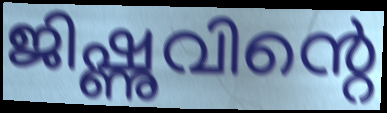
ജിഷ്ണുവിന്റെ